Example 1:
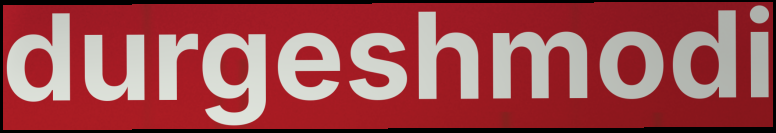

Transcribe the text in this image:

durgeshmodi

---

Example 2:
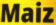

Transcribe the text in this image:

Maiz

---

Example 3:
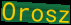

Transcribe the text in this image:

Orosz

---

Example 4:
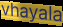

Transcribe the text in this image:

vhayala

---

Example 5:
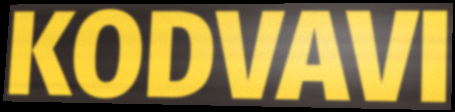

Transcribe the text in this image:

KODVAVI